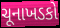
ચૂનાખડકો